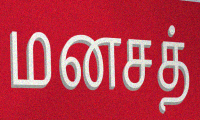
மனசத்